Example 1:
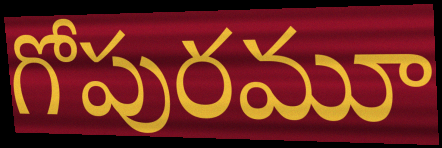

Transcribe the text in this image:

గోపురమూ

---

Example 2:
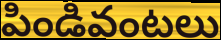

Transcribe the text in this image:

పిండివంటలు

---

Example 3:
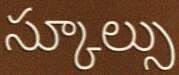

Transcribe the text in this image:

స్కూల్సు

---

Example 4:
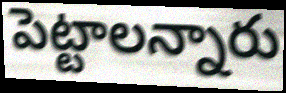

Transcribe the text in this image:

పెట్టాలన్నారు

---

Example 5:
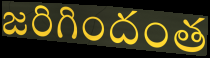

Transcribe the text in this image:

జరిగిందంత